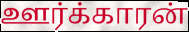
ஊர்க்காரன்